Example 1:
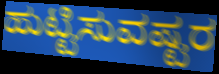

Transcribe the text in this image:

ಹುಟ್ಟಿಸುವಷ್ಟರ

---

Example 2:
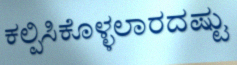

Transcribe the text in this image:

ಕಲ್ಪಿಸಿಕೊಳ್ಳಲಾರದಷ್ಟು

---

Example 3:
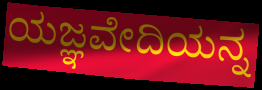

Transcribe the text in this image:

ಯಜ್ಞವೇದಿಯನ್ನ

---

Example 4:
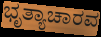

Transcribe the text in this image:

ಭೃತ್ಯಾಚಾರವ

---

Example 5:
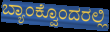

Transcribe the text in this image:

ಬ್ಯಾಂಕ್ವೊಂದರಲ್ಲಿ